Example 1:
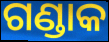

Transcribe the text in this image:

ଗଣ୍ଡାକ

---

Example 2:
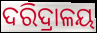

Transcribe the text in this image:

ଦରିଦ୍ରାଳୟ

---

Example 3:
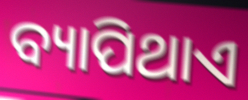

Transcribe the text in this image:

ବ୍ୟାପିଥାଏ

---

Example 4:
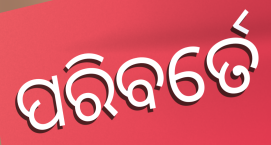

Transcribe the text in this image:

ପରିବର୍ତେ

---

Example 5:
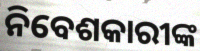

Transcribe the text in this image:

ନିବେଶକାରୀଙ୍କ